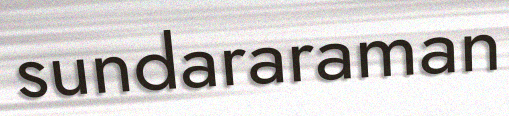
sundararaman